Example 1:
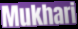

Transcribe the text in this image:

Mukhari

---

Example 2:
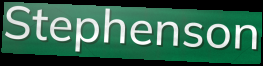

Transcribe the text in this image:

Stephenson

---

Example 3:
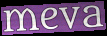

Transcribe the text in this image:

meva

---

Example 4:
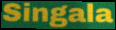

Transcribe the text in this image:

Singala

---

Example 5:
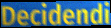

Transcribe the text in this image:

Decidendi